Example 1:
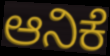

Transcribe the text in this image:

ಆನಿಕೆ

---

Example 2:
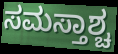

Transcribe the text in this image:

ಸಮಸ್ತಾಶ್ಚ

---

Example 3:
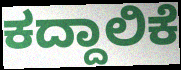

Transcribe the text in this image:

ಕದ್ದಾಲಿಕೆ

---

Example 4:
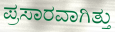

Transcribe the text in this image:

ಪ್ರಸಾರವಾಗಿತ್ತು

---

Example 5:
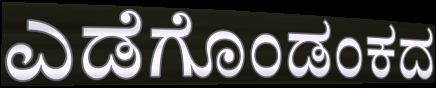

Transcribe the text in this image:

ಎಡೆಗೊಂಡಂಕದ